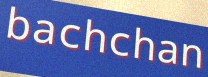
bachchan